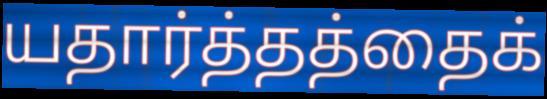
யதார்த்தத்தைக்